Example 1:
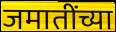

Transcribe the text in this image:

जमातींच्या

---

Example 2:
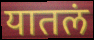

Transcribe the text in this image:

यातलं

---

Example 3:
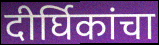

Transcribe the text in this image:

दीर्घिकांचा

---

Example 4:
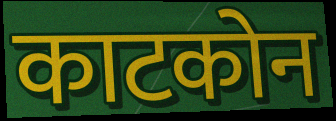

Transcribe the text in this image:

काटकोन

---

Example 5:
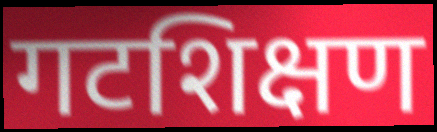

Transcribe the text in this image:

गटशिक्षण